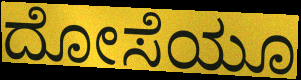
ದೋಸೆಯೂ